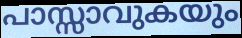
പാസ്സാവുകയും